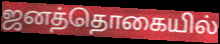
ஜனத்தொகையில்